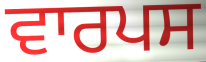
ਵਾਰਪਸ